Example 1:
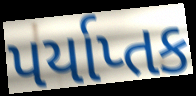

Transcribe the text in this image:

પર્યાપ્તક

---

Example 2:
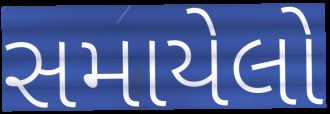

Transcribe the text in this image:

સમાયેલો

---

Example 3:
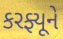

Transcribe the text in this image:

કરફ્યૂને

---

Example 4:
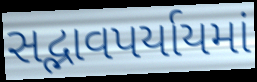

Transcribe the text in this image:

સદ્ભાવપર્યાયમાં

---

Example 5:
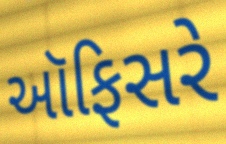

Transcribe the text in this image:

ઑફિસરે